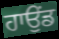
ਹਾਉਂਡ